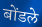
बोंडले